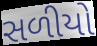
સળીયો